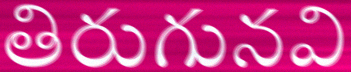
తిరుగునవి